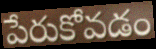
పేరుకోవడం